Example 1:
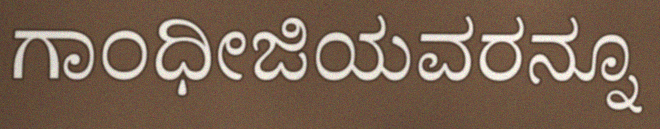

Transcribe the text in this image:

ಗಾಂಧೀಜಿಯವರನ್ನೂ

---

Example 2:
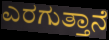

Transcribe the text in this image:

ಎರಗುತ್ತಾನೆ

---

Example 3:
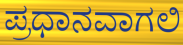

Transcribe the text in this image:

ಪ್ರಧಾನವಾಗಲಿ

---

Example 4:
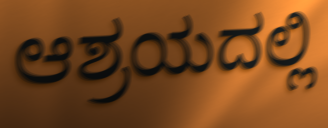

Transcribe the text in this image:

ಆಶ್ರಯದಲ್ಲಿ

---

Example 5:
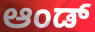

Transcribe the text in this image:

ಆಂಡ್